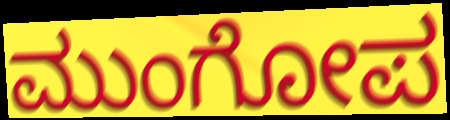
ಮುಂಗೋಪ